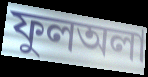
ফুলঅলা